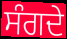
ਸੰਗਦੇ